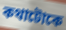
কথাটোকে